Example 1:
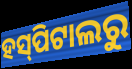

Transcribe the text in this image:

ହସ୍‌ପିଟାଲରୁ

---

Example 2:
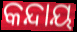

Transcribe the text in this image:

କନ୍ଦାୟ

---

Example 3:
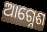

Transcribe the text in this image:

ଆଗ୍ନେଶ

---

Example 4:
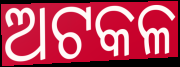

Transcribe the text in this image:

ଅଟକଳ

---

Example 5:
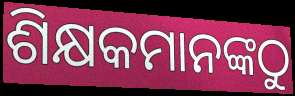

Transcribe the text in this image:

ଶିକ୍ଷକମାନଙ୍କଠୁ